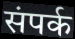
संपर्क